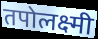
तपोलक्ष्मी